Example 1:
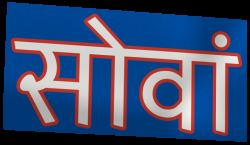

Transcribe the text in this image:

सोवां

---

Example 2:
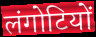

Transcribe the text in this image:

लंगोटियों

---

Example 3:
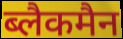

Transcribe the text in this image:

ब्लैकमैन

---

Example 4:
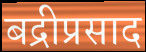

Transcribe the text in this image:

बद्रीप्रसाद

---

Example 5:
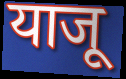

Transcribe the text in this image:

याजू